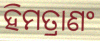
ହିମତ୍ରାଣଂ